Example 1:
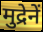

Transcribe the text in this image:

मुद्रेनें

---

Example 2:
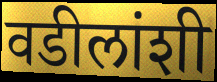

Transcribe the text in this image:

वडीलांशी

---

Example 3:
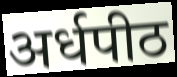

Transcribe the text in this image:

अर्धपीठ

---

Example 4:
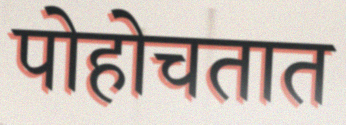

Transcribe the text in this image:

पोहोचतात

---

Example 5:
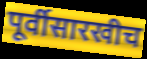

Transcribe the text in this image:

पूर्वीसारखीच